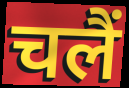
चलैं